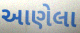
આણેલા